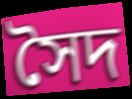
সৈদ